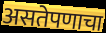
असतेपणाचा